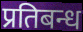
प्रतिबन्ध